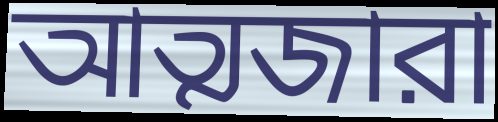
আত্মজারা